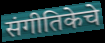
संगीतिकेचे